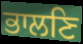
ਭਾਲਣਿ